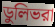
ডুলিভরা